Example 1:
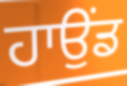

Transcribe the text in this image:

ਹਾਉਂਡ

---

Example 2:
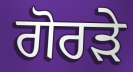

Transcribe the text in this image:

ਗੋਰੜੇ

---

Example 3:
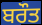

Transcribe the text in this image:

ਬਰੌਤ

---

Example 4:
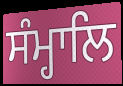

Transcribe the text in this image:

ਸੰਮ੍ਹ੍ਹਾਲਿ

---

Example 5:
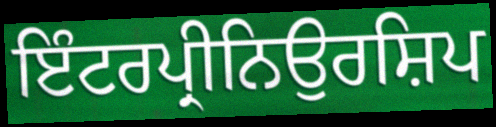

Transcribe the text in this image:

ਇੰਟਰਪ੍ਰੀਨਿਉਰਸ਼ਿਪ